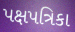
પક્ષપત્રિકા